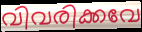
വിവരിക്കവേ